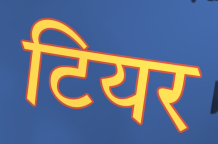
टियर